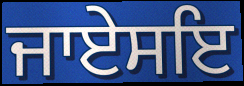
ਜਾਏਸਇ